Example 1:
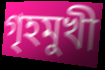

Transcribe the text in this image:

গৃহমুখী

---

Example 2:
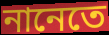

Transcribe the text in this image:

নানেতে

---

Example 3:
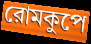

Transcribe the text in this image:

রোমকুপে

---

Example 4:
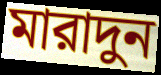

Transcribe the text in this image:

মারাদুন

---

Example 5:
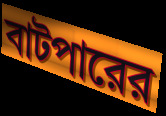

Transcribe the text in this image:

বাটপারের